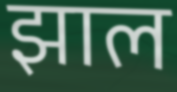
झाल